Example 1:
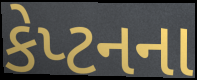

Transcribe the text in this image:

કેપ્ટનના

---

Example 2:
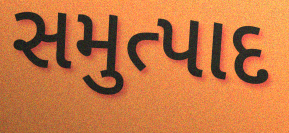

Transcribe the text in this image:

સમુત્પાદ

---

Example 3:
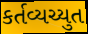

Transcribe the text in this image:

કર્તવ્યચ્યુત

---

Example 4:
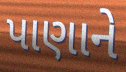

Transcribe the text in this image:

પાણાને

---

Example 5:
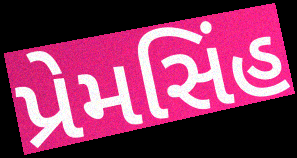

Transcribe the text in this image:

પ્રેમસિંહ